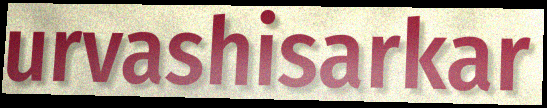
urvashisarkar